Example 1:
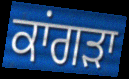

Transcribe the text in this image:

ਕਾਂਗੜਾ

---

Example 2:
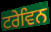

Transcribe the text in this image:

ਟਰੇਵਿਨ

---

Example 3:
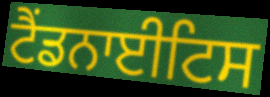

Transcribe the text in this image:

ਟੈਂਡਨਾਈਟਿਸ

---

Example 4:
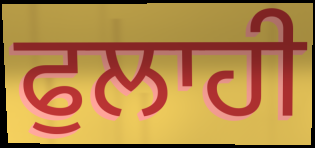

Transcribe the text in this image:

ਫੁਲਾਹੀ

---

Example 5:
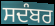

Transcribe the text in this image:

ਸਦੰਬਰ